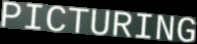
PICTURING